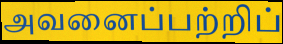
அவனைப்பற்றிப்